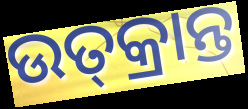
ଉତ୍‌କ୍ରାନ୍ତ